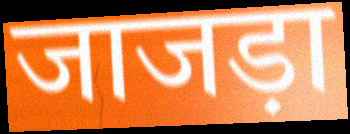
जाजड़ा